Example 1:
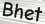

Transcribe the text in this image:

Bhet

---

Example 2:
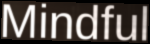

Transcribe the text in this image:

Mindful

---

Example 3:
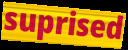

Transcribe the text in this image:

suprised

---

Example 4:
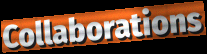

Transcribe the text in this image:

Collaborations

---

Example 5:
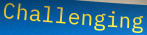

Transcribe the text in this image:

Challenging